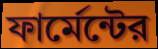
ফার্মেন্টের